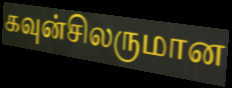
கவுன்சிலருமான